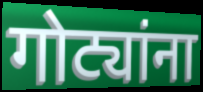
गोट्यांना